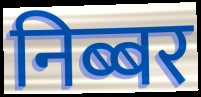
निब्बर